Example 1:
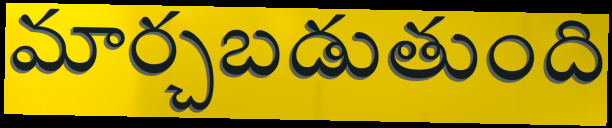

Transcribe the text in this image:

మార్చబడుతుంది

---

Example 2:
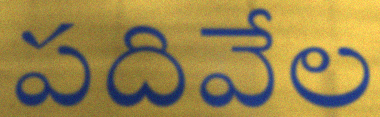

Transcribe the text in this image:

పదివేల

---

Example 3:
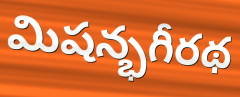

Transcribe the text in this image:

మిషన్భగీరథ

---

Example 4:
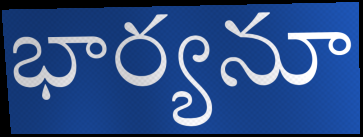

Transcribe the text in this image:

భార్యనూ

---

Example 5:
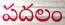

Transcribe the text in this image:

పదలం